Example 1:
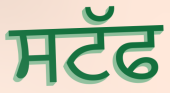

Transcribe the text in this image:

ਸਟੱਫ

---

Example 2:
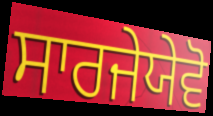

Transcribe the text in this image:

ਸਾਰਜੇਯੇਵੋ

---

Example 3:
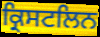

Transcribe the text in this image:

ਕ੍ਰਿਸਟਲਿਨ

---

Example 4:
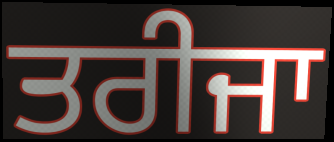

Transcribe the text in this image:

ਤਰੀਜਾ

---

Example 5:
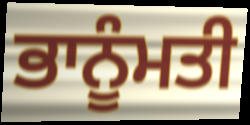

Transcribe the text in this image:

ਭਾਨੂੰਮਤੀ